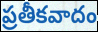
ప్రతీకవాదం